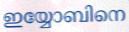
ഇയ്യോബിനെ